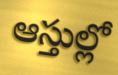
ఆస్తుల్లో